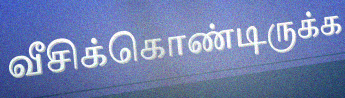
வீசிக்கொண்டிருக்க